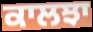
ਕਾਲਝਾ